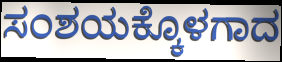
ಸಂಶಯಕ್ಕೊಳಗಾದ